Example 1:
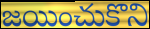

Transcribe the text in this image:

జయించుకొని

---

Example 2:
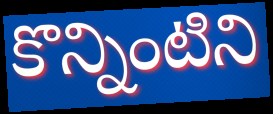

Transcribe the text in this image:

కొన్నింటిని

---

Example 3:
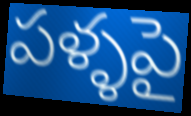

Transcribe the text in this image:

పళ్ళపై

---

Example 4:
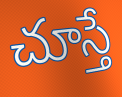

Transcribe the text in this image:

చూస్తే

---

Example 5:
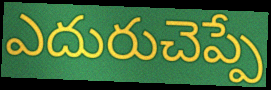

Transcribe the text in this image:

ఎదురుచెప్పే